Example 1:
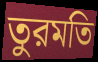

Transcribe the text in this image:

তুরমতি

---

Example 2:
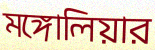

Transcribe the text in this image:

মঙ্গোলিয়ার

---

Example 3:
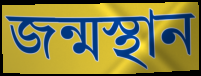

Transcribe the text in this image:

জন্মস্থান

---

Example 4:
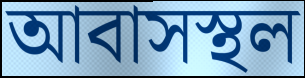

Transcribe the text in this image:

আবাসস্থল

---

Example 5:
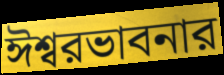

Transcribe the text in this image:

ঈশ্বরভাবনার